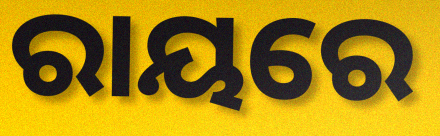
ରାୟରେ